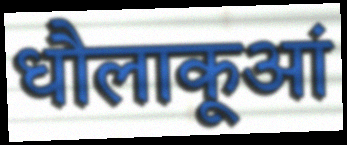
धौलाकूआं